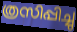
ത്രസിപ്പിച്ചു